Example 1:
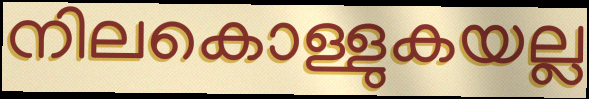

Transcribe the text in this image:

നിലകൊള്ളുകയല്ല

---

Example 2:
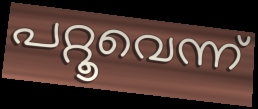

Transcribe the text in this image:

പറ്റൂവെന്ന്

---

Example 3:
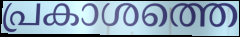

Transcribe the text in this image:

പ്രകാശത്തെ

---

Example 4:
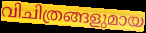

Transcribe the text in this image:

വിചിത്രങ്ങളുമായ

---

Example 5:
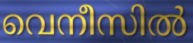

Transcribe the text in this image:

വെനീസിൽ